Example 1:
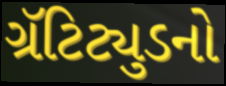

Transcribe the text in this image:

ગ્રૅટિટ્યુડનો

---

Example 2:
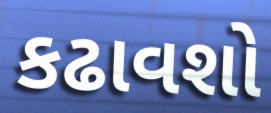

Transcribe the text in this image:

કઢાવશો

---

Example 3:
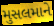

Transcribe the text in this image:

મુસલમાને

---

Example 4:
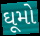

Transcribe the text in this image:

ઘૂમો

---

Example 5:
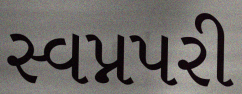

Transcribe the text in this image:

સ્વપ્નપરી